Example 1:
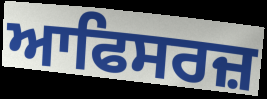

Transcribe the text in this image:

ਆਫਿਸਰਜ਼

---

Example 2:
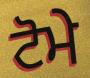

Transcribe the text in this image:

ਟੋਮੇ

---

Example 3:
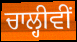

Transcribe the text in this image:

ਚਾਲ੍ਹੀਵੀਂ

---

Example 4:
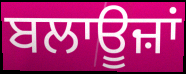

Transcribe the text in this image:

ਬਲਾਊਜ਼ਾਂ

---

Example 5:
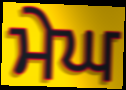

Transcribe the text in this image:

ਮੇਘ